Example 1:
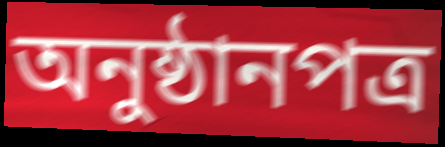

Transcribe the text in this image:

অনুষ্ঠানপত্র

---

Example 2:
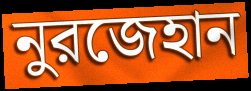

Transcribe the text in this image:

নুরজেহান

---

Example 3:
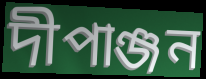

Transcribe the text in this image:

দীপাঞ্জন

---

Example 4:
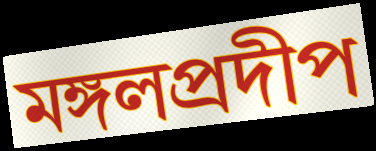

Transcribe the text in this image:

মঙ্গলপ্রদীপ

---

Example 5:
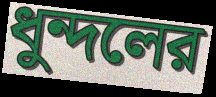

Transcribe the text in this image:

ধুন্দলের